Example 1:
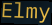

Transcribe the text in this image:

Elmy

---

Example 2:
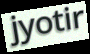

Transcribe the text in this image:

jyotir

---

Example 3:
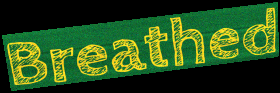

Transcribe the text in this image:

Breathed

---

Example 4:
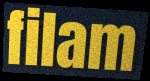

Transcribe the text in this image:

filam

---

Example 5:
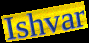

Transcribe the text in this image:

Ishvar